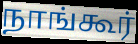
நாங்கூர்